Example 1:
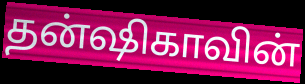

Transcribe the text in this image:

தன்ஷிகாவின்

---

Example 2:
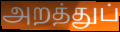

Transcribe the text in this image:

அறத்துப்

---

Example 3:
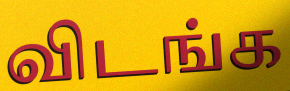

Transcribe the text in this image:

விடங்க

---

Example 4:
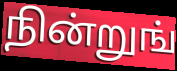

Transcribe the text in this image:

நின்றுங்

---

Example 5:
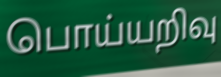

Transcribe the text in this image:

பொய்யறிவு